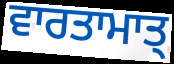
ਵਾਰਤਾਮਾਤ੍